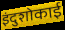
इंदुशोकाई